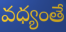
వధ్యంతే